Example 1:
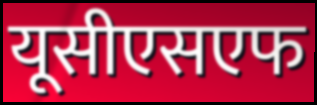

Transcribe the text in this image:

यूसीएसएफ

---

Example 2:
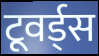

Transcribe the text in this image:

टूवर्ड्स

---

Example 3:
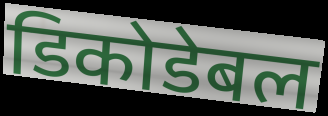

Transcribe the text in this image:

डिकोडेबल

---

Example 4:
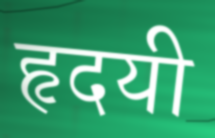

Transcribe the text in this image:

हृदयी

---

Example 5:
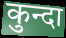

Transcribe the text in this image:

कुन्दा